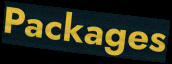
Packages